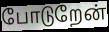
போடுறேன்